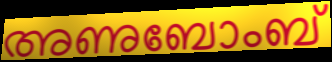
അണുബോംബ്